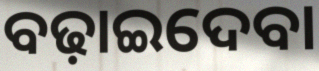
ବଢ଼ାଇଦେବା